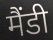
मैंडी